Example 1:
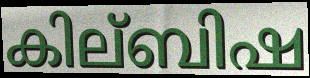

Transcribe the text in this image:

കില്ബിഷ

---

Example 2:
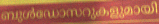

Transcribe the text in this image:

ബുൾഡോസറുകളുമായി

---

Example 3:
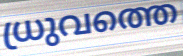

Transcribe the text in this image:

ധ്രുവത്തെ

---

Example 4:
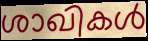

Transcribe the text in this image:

ശാഖികൾ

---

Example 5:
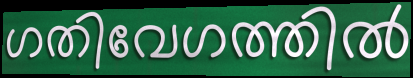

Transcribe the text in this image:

ഗതിവേഗത്തിൽ